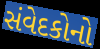
સંવેદકોનો